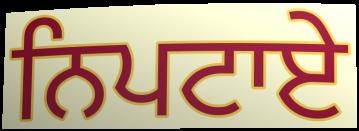
ਨਿਪਟਾਏ